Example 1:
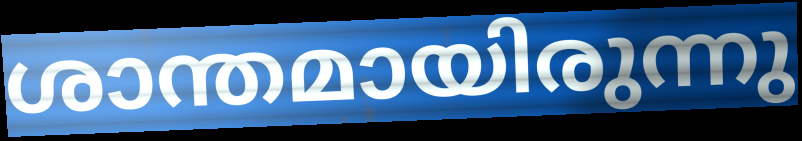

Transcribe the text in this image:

ശാന്തമായിരുന്നു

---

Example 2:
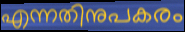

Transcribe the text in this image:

എന്നതിനുപകരം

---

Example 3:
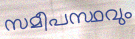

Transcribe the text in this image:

സമീപസ്ഥവും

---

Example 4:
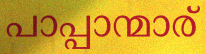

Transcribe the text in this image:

പാപ്പാന്മാര്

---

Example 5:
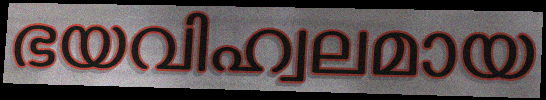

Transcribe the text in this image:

ഭയവിഹ്വലമായ